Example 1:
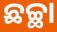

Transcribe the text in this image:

ଛଚ୍ଛା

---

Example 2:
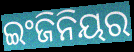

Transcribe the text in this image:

ଇଂଜିନିୟର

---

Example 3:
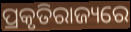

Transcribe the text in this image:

ପ୍ରକୃତିରାଜ୍ୟରେ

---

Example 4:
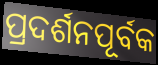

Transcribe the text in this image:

ପ୍ରଦର୍ଶନପୂର୍ବକ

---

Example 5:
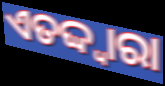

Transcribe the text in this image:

ଏତଦ୍ଦ୍ୱାରା